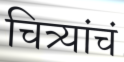
चित्र्यांचं